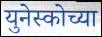
युनेस्कोच्या